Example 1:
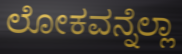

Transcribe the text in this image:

ಲೋಕವನ್ನೆಲ್ಲಾ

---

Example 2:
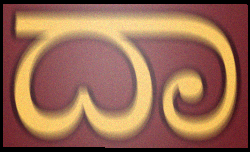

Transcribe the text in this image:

ದಾ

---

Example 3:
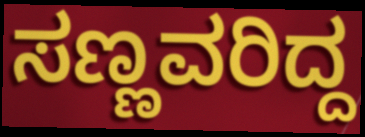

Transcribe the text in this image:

ಸಣ್ಣವರಿದ್ದ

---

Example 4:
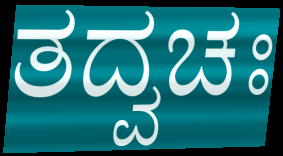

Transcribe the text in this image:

ತದ್ವಚಃ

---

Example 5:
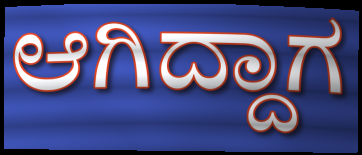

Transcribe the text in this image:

ಆಗಿದ್ದಾಗ